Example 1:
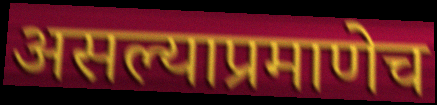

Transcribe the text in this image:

असल्याप्रमाणेच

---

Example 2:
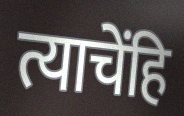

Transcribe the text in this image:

त्याचेंहि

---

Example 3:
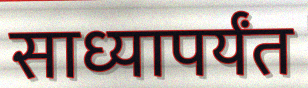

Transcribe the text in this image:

साध्यापर्यंत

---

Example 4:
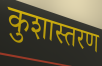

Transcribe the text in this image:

कुशास्तरण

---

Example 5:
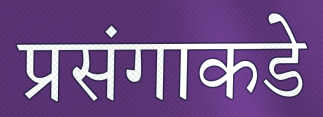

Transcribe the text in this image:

प्रसंगाकडे